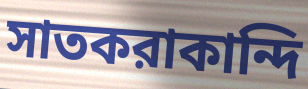
সাতকরাকান্দি